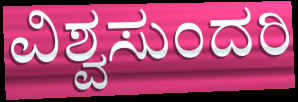
ವಿಶ್ವಸುಂದರಿ